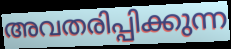
അവതരിപ്പിക്കുന്ന